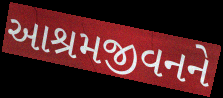
આશ્રમજીવનને